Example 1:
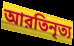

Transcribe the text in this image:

আরতিনৃত্য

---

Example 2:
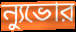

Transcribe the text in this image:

ন্যুভোর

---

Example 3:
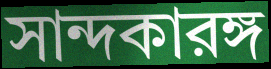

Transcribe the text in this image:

সান্দকারঙ্গ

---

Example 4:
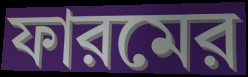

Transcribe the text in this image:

ফারমের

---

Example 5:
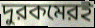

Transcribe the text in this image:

দুরকমেরই